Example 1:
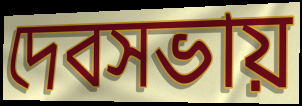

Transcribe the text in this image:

দেবসভায়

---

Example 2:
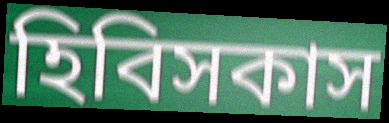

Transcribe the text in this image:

হিবিসকাস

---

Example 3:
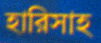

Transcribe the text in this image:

হারিসাহ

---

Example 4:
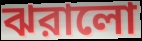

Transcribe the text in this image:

ঝরালো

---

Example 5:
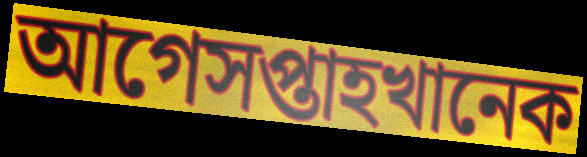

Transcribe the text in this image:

আগেসপ্তাহখানেক